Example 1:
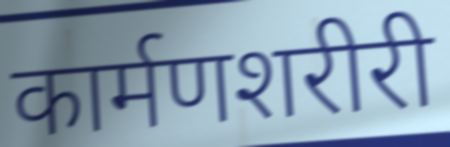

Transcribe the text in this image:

कार्मणशरीरी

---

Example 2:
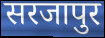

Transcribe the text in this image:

सरजापुर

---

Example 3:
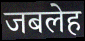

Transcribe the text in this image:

जबलेह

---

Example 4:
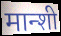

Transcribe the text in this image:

मान्शी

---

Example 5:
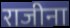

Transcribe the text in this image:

राजीना